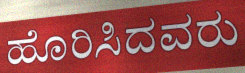
ಹೊರಿಸಿದವರು